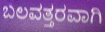
ಬಲವತ್ತರವಾಗಿ